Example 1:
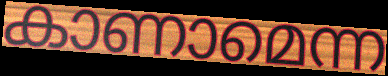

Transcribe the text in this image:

കാണാമെന്ന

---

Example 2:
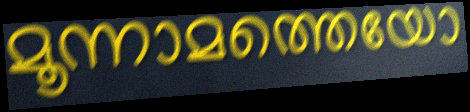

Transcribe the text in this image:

മൂന്നാമത്തെയോ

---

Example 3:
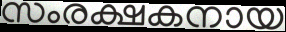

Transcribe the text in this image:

സംരക്ഷകനായ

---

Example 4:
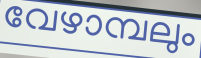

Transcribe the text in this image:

വേഴാമ്പലും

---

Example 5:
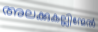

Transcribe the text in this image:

അലക്കുകല്ലിന്മേൽ